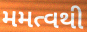
મમત્વથી